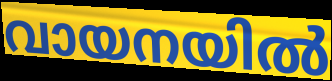
വായനയിൽ